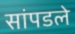
सांपडले